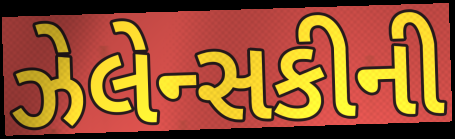
ઝેલેન્સકીની